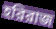
হরিরাজ